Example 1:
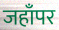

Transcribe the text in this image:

जहाँपर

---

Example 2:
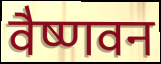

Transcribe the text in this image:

वैष्णवन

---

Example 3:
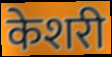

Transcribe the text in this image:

केशरी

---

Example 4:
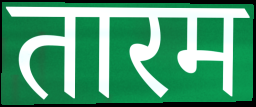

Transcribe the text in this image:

तारम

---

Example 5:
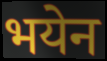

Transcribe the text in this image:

भयेन